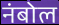
नंबोल